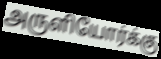
அருளியோர்க்கு